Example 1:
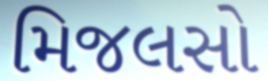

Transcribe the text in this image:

મિજલસો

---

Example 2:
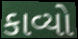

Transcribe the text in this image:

કાવ્યો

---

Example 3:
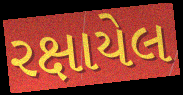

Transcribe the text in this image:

રક્ષાયેલ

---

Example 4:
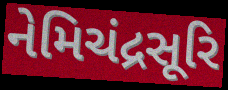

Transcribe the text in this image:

નેમિચંદ્રસૂરિ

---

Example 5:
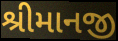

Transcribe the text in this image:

શ્રીમાનજી